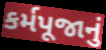
કર્મપૂજાનું